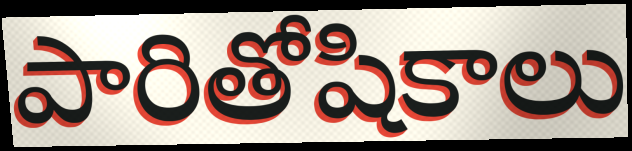
పారితోషికాలు